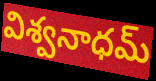
విశ్వనాధమ్